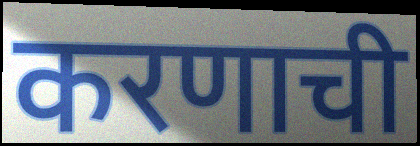
करणाची